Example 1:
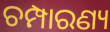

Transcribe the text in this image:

ଚମ୍ପାରଣ୍ୟ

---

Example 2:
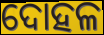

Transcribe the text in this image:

ଦୋହଳ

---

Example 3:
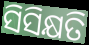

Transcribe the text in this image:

ସିସିକ୍ଷତି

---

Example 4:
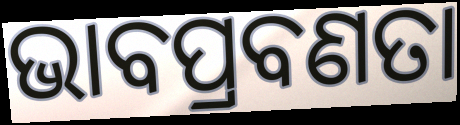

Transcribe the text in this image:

ଭାବପ୍ରବଣତା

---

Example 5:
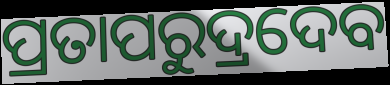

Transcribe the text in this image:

ପ୍ରତାପରୁଦ୍ରଦେବ